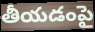
తీయడంపై